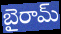
బైరామ్